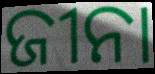
ଜୀନା